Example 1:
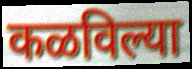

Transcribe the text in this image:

कळविल्या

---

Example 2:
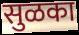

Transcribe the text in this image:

सुळका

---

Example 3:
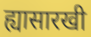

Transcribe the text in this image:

ह्यासारखी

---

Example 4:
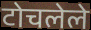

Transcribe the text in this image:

टोचलेले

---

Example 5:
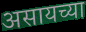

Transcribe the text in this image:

असायच्या